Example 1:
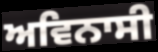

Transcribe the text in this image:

ਅਵਿਨਾਸੀ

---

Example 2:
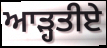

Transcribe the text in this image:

ਆੜ੍ਹਤੀਏ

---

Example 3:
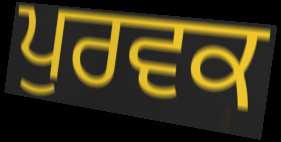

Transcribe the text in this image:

ਪੁਰਵਕ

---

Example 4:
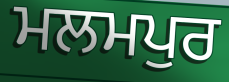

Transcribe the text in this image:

ਮਲਮਪੁਰ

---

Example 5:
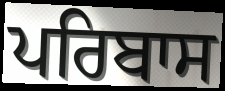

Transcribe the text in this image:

ਪਰਿਬਾਸ